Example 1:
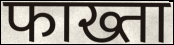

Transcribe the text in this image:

फाख्ता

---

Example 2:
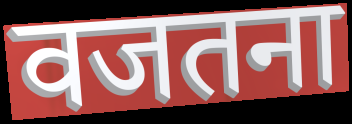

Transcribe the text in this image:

वजतना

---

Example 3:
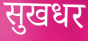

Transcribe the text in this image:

सुखधर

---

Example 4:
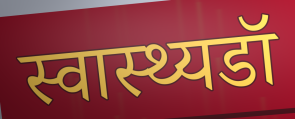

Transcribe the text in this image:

स्वास्थ्यडॉ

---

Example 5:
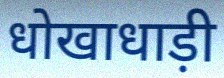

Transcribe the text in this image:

धोखाधाड़ी